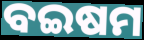
ବଇଷମ